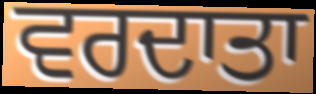
ਵਰਦਾਤਾ